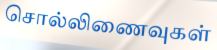
சொல்லிணைவுகள்